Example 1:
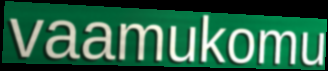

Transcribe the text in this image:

vaamukomu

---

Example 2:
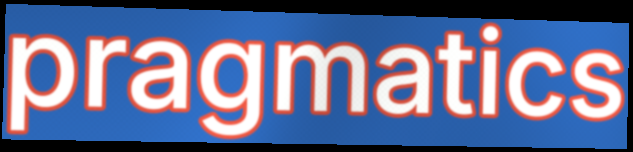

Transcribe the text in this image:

pragmatics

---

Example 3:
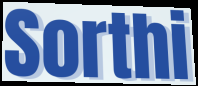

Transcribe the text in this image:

Sorthi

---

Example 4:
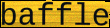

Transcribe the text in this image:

baffle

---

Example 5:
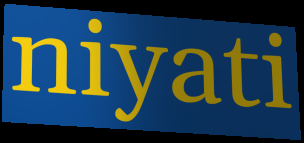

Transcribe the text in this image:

niyati